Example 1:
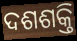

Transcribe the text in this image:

ଦଶଶକ୍ତି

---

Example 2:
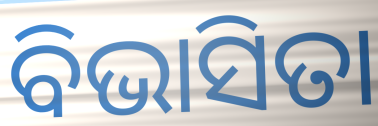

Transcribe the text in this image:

ବିଭାସିତା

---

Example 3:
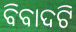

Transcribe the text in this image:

ବିବାଦଟି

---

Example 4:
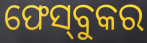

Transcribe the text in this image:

ଫେସ୍‌ବୁକର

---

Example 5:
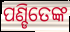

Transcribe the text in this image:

ପଣ୍ଡିତେଙ୍କ